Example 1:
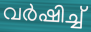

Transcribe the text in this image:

വർഷിച്ച്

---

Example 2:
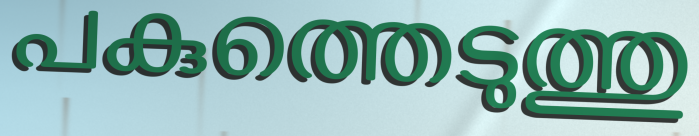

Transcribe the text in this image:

പകുത്തെടുത്തു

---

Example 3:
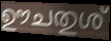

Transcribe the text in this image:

ഊചതുശ്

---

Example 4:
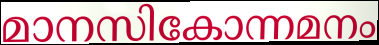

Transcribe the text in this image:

മാനസികോന്നമനം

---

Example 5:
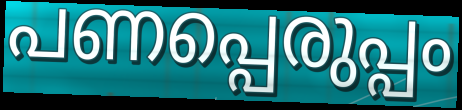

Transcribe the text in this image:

പണപ്പെരുപ്പം